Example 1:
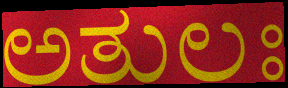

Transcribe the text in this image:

ಅತುಲಃ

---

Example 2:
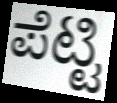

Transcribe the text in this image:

ಪೆಟ್ಟಿ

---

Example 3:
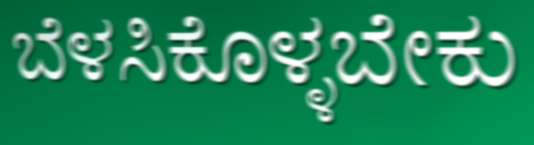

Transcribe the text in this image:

ಬೆಳಸಿಕೊಳ್ಳಬೇಕು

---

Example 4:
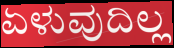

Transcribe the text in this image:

ಏಳುವುದಿಲ್ಲ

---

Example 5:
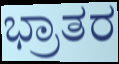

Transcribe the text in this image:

ಭ್ರಾತರ